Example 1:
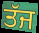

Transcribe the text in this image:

ਤੱਜ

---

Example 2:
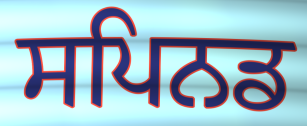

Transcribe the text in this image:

ਸਪਿਨਡ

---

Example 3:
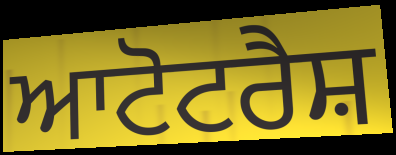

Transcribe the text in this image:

ਆਟੋਟਰੈਸ਼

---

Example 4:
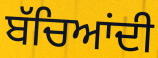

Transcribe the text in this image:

ਬੱਚਿਆਂਦੀ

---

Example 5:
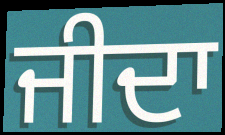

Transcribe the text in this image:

ਜੀਦਾ